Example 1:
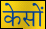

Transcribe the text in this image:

केसों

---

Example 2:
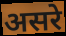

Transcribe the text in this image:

असरे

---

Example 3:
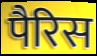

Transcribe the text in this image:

पैरिस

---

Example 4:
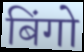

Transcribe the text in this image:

बिंगो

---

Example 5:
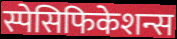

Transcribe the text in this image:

स्पेसिफिकेशन्स